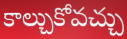
కాల్చుకోవచ్చు